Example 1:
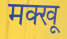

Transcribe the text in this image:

मक्खू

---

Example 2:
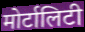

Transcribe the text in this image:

मोर्टालिटी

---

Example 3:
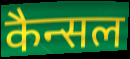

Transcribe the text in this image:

कैन्सल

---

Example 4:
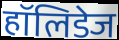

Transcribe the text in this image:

हॉलिडेज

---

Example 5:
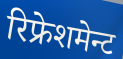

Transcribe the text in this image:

रिफ्रेशमेन्ट